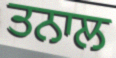
ਤਨਾਲ